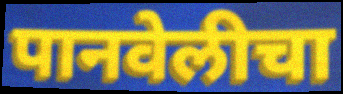
पानवेलीचा